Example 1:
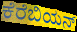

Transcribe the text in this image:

ಕೆರೆಬಿಯನ್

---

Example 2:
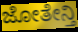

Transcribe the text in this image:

ಜೋತೇನ್ತಿ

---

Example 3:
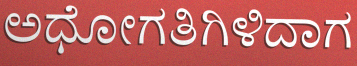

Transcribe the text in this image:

ಅಧೋಗತಿಗಿಳಿದಾಗ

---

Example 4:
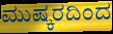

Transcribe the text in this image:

ಮುಷ್ಕರದಿಂದ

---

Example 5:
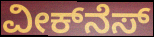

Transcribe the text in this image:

ವೀಕ್‌ನೆಸ್